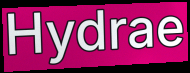
Hydrae